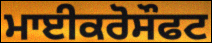
ਮਾਈਕਰੋਸੌਫਟ